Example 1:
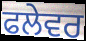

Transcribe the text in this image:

ਫਲੇਵਰ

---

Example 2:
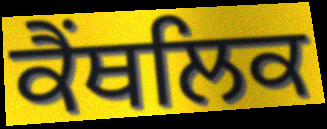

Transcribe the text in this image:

ਕੈਂਥਲਿਕ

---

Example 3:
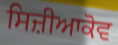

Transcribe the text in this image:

ਸਿਜ਼ੀਆਕੋਵ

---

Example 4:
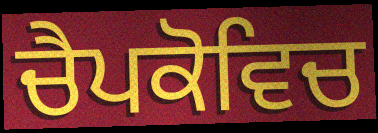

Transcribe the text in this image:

ਚੈਪਕੋਵਿਚ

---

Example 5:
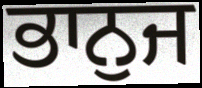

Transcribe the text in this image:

ਭਾਨੁਜ